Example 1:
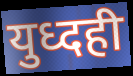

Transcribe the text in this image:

युध्दही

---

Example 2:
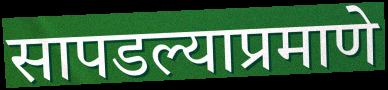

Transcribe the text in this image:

सापडल्याप्रमाणे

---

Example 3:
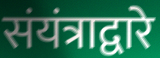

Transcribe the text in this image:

संयंत्राद्वारे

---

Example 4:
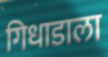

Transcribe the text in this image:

गिधाडाला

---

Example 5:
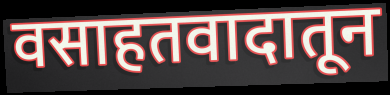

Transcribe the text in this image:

वसाहतवादातून